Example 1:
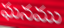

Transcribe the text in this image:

ఘనము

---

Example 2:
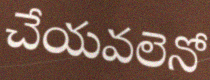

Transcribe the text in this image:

చేయవలెనో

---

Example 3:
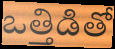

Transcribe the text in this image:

ఒత్తిడితో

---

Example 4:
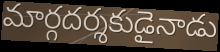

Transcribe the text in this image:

మార్గదర్శకుడైనాడు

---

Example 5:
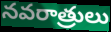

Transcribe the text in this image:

నవరాత్రులు